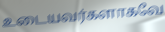
உடையவர்களாகவே